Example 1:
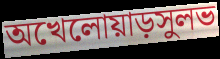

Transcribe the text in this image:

অখেলোয়াড়সুলভ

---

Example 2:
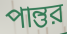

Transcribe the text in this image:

পান্তুর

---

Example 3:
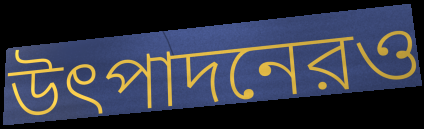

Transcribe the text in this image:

উৎপাদনেরও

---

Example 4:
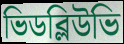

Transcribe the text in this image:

ভিডব্লিউভি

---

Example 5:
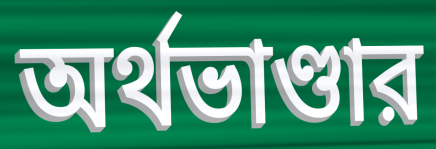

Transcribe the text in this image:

অর্থভাণ্ডার